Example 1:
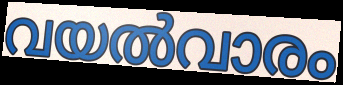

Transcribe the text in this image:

വയൽവാരം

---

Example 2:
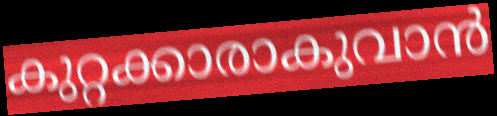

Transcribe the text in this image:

കുറ്റക്കാരാകുവാൻ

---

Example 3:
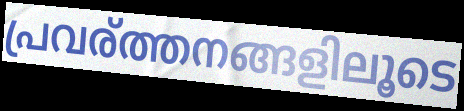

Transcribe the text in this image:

പ്രവര്ത്തനങ്ങളിലൂടെ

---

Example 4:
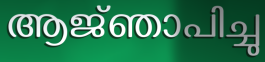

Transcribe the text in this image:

ആജ്‌ഞാപിച്ചു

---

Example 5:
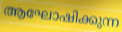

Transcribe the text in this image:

ആഘോഷിക്കുന്ന